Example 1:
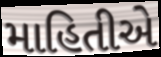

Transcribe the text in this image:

માહિતીએ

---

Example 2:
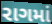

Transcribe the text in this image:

રાગમાં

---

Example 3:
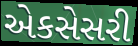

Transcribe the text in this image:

એકસેસરી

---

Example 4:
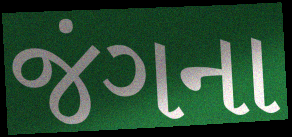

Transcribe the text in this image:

જંગના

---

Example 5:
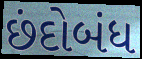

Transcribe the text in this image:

છંદોબંધ